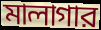
মালাগার